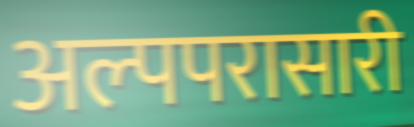
अल्पपरासारी